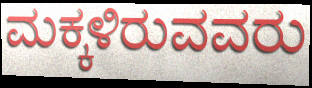
ಮಕ್ಕಳಿರುವವರು